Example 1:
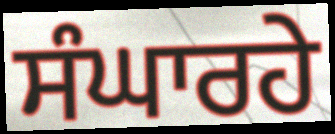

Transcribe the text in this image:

ਸੰਘਾਰਹੇ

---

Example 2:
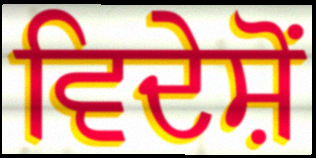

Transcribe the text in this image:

ਵਿਦੇਸ਼ੋਂ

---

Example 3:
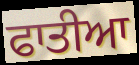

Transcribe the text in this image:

ਫਾਤੀਆ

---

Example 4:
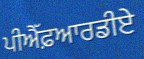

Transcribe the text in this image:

ਪੀਐੱਫ਼ਆਰਡੀਏ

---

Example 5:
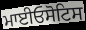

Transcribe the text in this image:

ਮਾਈਓਸੋਟਿਸ